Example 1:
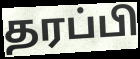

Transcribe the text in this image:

தரப்பி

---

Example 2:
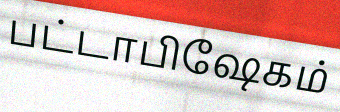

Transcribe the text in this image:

பட்டாபிஷேகம்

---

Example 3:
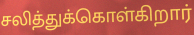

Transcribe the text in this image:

சலித்துக்கொள்கிறார்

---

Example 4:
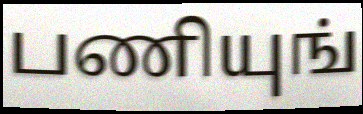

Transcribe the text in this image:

பணியுங்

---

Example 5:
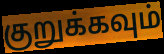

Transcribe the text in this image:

குறுக்கவும்